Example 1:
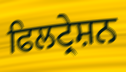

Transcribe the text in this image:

ਫਿਲਟ੍ਰੇਸ਼ਨ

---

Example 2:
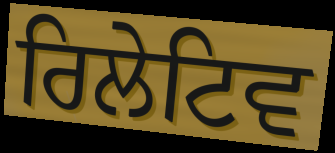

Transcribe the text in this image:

ਰਿਲੇਟਿਵ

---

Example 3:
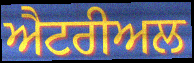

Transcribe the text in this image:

ਐਟਰੀਅਲ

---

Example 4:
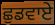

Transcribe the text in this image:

ਛੁਡਵਾਏ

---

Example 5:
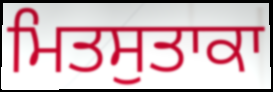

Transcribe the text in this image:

ਮਿਤਸੁਤਾਕਾ